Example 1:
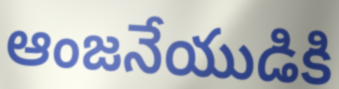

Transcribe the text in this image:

ఆంజనేయుడికి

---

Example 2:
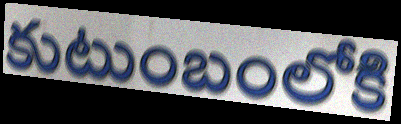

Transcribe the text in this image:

కుటుంబంలోకి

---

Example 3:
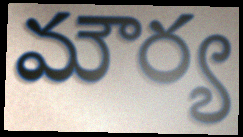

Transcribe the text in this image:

మౌర్య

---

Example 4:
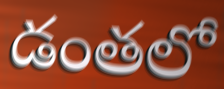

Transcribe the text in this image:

డంతలో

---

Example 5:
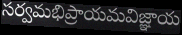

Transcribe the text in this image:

సర్వమభిప్రాయమవిజ్ఞాయ